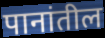
पानांतील